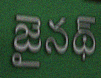
జైనథ్